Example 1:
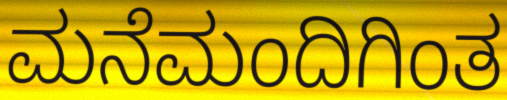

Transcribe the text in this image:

ಮನೆಮಂದಿಗಿಂತ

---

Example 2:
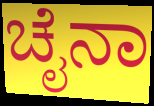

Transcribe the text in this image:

ಚೈನಾ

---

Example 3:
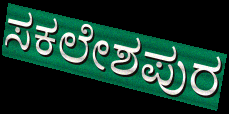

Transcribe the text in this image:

ಸಕಲೇಶಪುರ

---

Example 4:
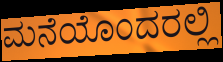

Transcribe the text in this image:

ಮನೆಯೊಂದರಲ್ಲಿ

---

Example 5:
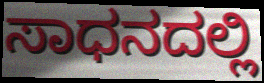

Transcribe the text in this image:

ಸಾಧನದಲ್ಲಿ